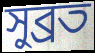
সুব্রত